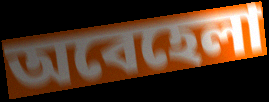
অবেহেলা